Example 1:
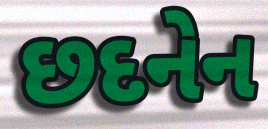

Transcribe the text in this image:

છદનેન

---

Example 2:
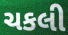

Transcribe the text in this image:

ચકલી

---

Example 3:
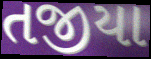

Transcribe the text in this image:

તજીયા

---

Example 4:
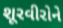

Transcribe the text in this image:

શૂરવીરોને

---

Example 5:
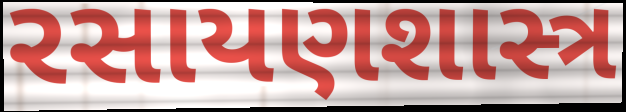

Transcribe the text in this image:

રસાયણશાસ્ત્ર